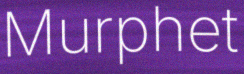
Murphet